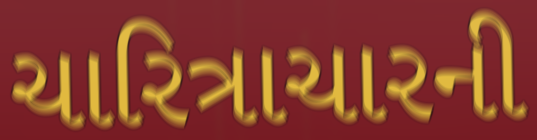
ચારિત્રાચારની